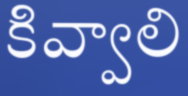
కివ్వాలి